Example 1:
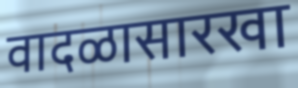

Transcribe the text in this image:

वादळासारखा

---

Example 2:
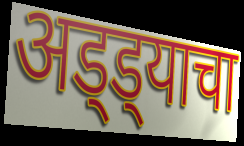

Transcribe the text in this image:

अड्ड्याचा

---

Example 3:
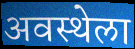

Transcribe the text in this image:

अवस्थेला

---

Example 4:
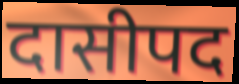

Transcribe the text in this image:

दासीपद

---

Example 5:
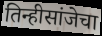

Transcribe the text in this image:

तिन्हीसांजेचा